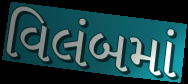
વિલંબમાં